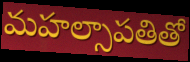
మహల్సాపతితో